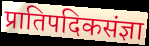
प्रातिपदिकसंज्ञा